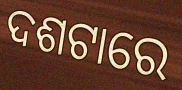
ଦଶଟାରେ